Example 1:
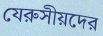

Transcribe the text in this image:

যেরুসীয়দের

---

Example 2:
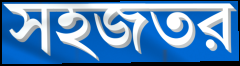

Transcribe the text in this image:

সহজতর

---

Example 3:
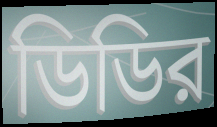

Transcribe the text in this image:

ডিডির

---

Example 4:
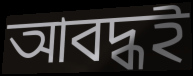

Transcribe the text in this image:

আবদ্ধই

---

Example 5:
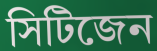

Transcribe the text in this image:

সিটিজেন